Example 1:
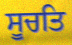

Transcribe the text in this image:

ਸੂਚਤਿ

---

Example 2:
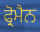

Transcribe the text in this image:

ਫ੍ਰੋਮੈਨ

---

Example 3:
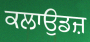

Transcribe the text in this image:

ਕਲਾਉਡਜ਼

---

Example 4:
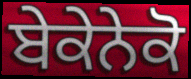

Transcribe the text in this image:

ਬੇਕੇਨੇਕੋ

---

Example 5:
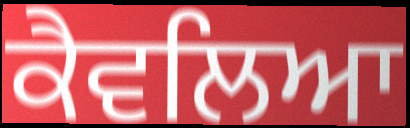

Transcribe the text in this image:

ਕੈਵਲਿਆ